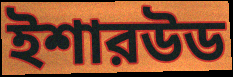
ইশারউড